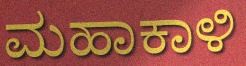
ಮಹಾಕಾಳಿ